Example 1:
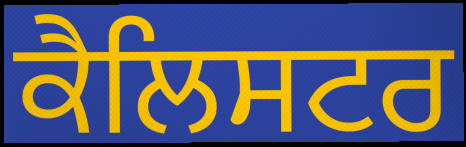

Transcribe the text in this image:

ਕੈਲਿਸਟਰ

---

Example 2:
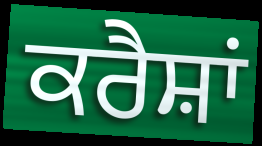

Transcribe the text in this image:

ਕਰੈਸ਼ਾਂ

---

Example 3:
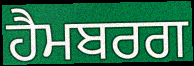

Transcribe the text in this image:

ਹੈਮਬਰਗ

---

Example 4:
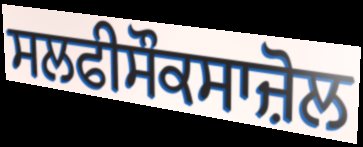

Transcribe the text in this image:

ਸਲਫੀਸੌਕਸਾਜ਼ੋਲ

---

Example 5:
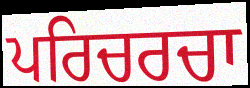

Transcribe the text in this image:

ਪਰਿਚਰਚਾ